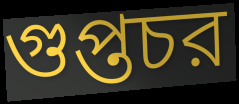
গুপ্তচর